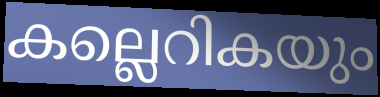
കല്ലെറികയും